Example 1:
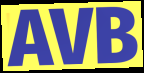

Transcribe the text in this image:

AVB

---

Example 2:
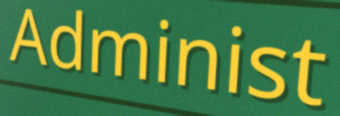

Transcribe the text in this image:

Administ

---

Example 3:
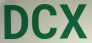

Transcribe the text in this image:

DCX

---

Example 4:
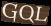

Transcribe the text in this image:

GQL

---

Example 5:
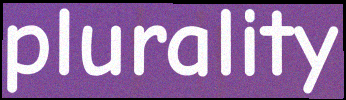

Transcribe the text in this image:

plurality